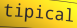
tipical